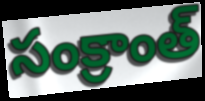
సంక్రాంత్